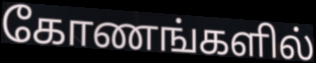
கோணங்களில்